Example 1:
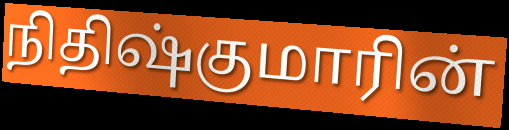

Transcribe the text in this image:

நிதிஷ்குமாரின்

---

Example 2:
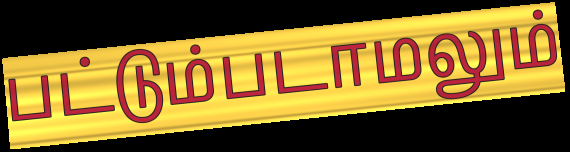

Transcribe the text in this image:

பட்டும்படாமலும்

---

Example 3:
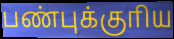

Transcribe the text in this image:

பண்புக்குரிய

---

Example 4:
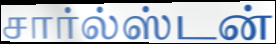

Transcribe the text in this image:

சார்ல்ஸ்டன்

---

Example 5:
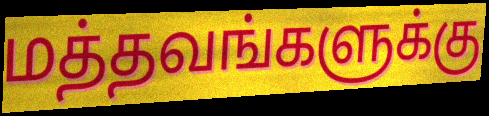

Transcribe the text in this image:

மத்தவங்களுக்கு